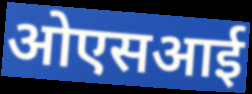
ओएसआई